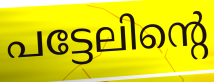
പട്ടേലിന്റെ